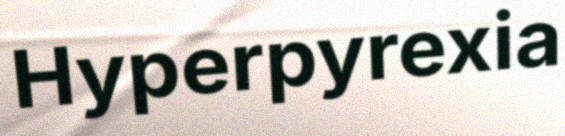
Hyperpyrexia